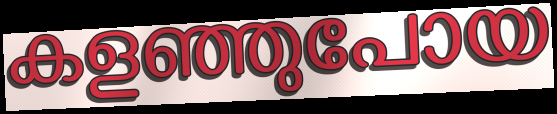
കളഞ്ഞുപോയ